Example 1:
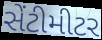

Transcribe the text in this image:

સેંટીમીટર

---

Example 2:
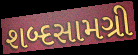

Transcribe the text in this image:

શબ્દસામગ્રી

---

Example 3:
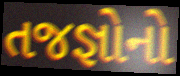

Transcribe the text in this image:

તજજ્ઞોનો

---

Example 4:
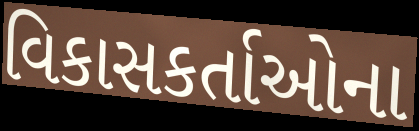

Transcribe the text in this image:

વિકાસકર્તાઓના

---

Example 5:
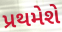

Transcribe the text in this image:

પ્રથમેશે